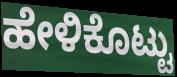
ಹೇಳಿಕೊಟ್ಟು